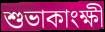
শুভাকাংক্ষী